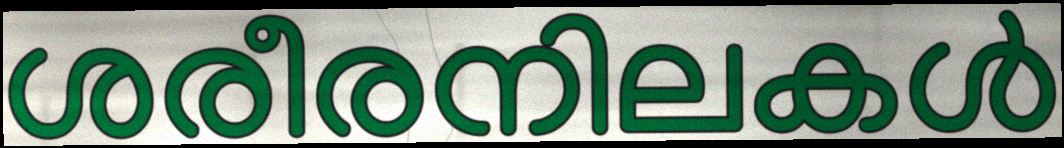
ശരീരനിലകൾ